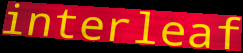
interleaf